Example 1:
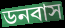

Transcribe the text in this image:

ডনবাস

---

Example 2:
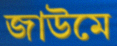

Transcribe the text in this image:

জাউমে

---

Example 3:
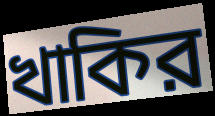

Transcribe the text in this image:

খাকির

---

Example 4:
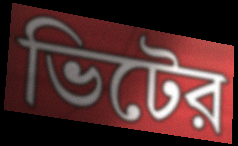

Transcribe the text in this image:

ভিটের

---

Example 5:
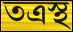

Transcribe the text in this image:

তত্রস্থ